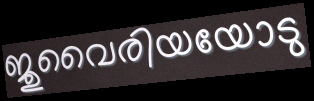
ജുവൈരിയയോടു